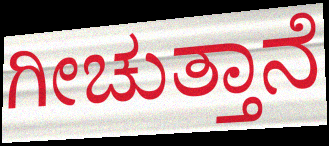
ಗೀಚುತ್ತಾನೆ